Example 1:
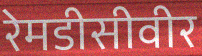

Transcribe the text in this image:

रेमडीसीवीर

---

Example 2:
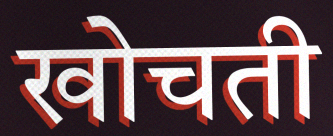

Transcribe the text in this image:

खोचती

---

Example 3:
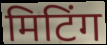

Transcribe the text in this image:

मिटिंग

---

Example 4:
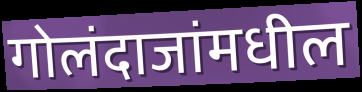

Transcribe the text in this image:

गोलंदाजांमधील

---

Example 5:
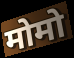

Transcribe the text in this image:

मोमो